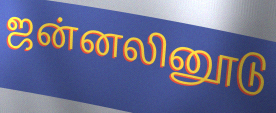
ஜன்னலினூடு